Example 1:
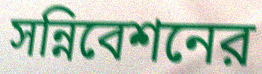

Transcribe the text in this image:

সন্নিবেশনের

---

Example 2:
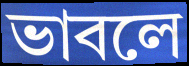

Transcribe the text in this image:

ভাবলে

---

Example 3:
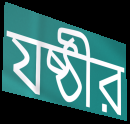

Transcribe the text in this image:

যষ্ঠীর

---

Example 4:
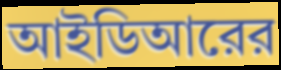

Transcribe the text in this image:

আইডিআরের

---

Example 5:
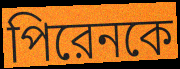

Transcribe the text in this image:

পিরেনকে